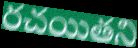
రచయితని